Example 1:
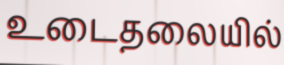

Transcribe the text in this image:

உடைதலையில்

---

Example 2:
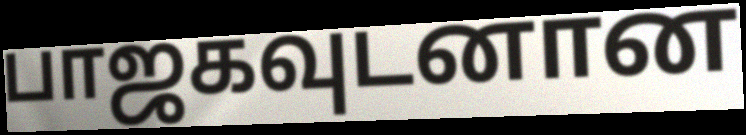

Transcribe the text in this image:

பாஜகவுடனான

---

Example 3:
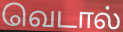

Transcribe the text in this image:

வெடால்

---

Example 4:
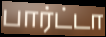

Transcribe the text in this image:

பார்ட்டா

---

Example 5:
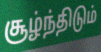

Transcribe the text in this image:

சூழ்ந்திடும்